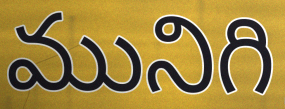
మునిగి